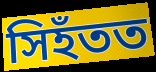
সিহঁতত